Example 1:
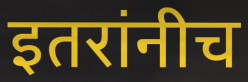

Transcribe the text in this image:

इतरांनीच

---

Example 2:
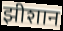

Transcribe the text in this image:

झीशान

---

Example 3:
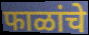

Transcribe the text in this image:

फाळांचे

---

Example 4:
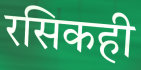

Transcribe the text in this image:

रसिकही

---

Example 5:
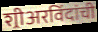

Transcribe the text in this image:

श्रीअरविंदांची